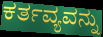
ಕರ್ತವ್ಯವನ್ನು